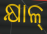
କ୍ଷାଳ୍